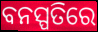
ବନସ୍ପତିରେ